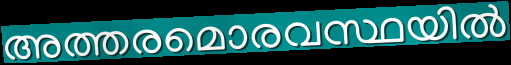
അത്തരമൊരവസ്ഥയിൽ